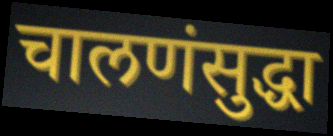
चालणंसुद्धा